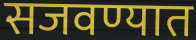
सजवण्यात